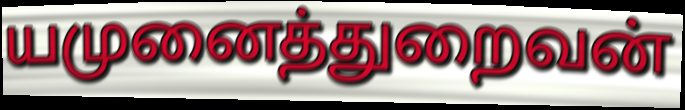
யமுனைத்துறைவன்